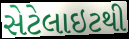
સેટેલાઇટથી